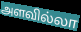
அளவில்லா